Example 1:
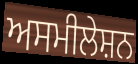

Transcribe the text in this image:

ਅਸਮੀਲੇਸ਼ਨ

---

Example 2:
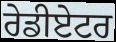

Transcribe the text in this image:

ਰੇਡੀਏਟਰ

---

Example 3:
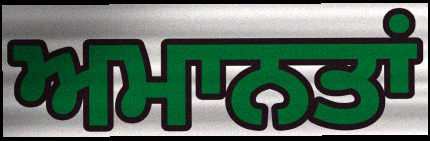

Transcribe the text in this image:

ਅਮਾਨਤਾਂ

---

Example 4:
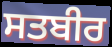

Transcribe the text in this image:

ਸਤਬੀਰ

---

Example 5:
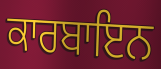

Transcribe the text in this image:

ਕਾਰਬਾਇਨ